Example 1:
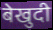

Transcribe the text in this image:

बेखुदी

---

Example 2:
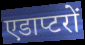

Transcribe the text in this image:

एडाप्टरों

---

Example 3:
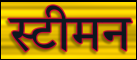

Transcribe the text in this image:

स्टीमन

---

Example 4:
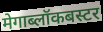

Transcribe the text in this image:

मेगाब्लॉकबस्टर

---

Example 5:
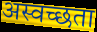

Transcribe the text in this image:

अस्वच्छता